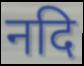
नदि